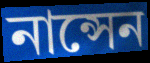
নান্সেন